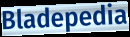
Bladepedia